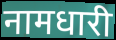
नामधारी